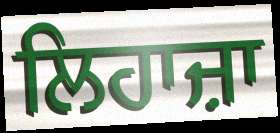
ਲਿਹਾਜ਼ਾ